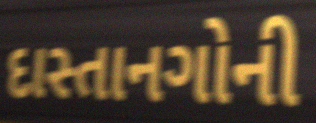
દાસ્તાનગોની